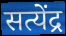
सत्येंद्र